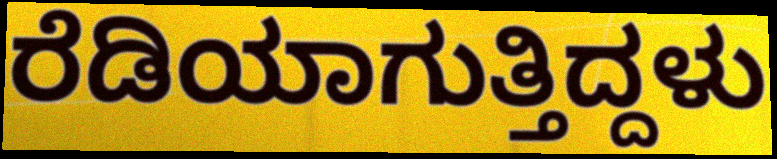
ರೆಡಿಯಾಗುತ್ತಿದ್ದಳು